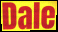
Dale